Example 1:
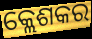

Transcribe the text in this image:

କ୍ଲେଶକର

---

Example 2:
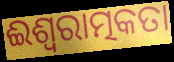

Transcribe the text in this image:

ଈଶ୍ଵରାତ୍ମକତା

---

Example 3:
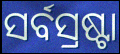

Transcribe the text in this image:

ସର୍ବସ୍ରଷ୍ଟା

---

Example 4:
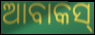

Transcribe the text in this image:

ଆବାକସ୍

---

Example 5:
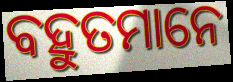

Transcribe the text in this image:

ବହୁତମାନେ